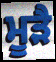
ਮੂੜੈ